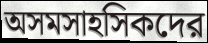
অসমসাহসিকদের